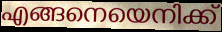
എങ്ങനെയെനിക്ക്